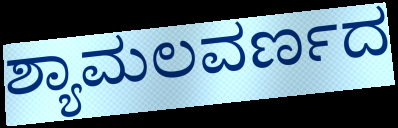
ಶ್ಯಾಮಲವರ್ಣದ